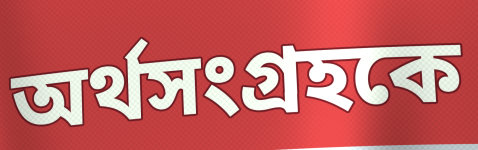
অর্থসংগ্রহকে